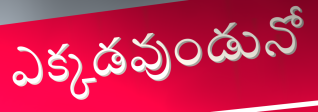
ఎక్కడవుండునో